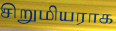
சிறுமியராக